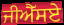
ਜੀਐੱਸਏ